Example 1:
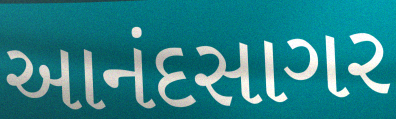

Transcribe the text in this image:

આનંદસાગર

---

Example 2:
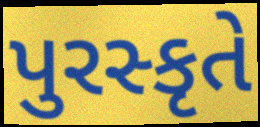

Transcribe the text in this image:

પુરસ્કૃતે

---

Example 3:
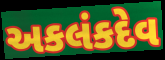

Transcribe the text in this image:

અકલંકદેવ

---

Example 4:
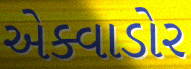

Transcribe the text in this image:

એક્વાડોર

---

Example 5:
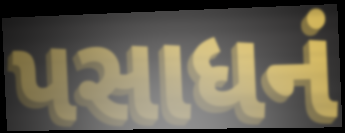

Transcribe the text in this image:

પસાધનં